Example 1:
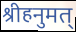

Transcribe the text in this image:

श्रीहनुमत्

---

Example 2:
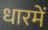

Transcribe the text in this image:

धारमें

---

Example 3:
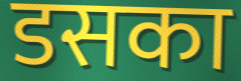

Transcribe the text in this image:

डसका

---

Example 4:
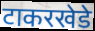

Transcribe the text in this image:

टाकरखेडे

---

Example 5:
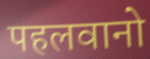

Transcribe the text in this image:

पहलवानो